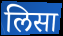
लिसा